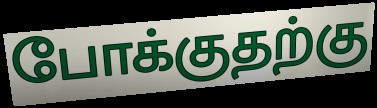
போக்குதற்கு